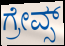
ಗ್ರೇವ್ಸ್